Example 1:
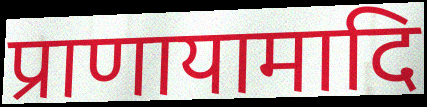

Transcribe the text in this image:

प्राणायामादि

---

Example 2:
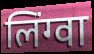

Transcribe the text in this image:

लिंग्वा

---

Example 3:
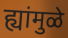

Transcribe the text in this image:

ह्यांमुळे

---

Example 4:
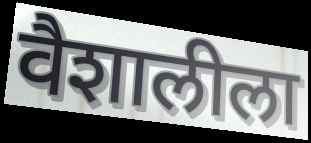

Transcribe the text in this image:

वैशालीला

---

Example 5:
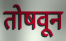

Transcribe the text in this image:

तोषवून